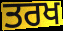
ਤਰਖ